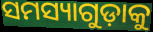
ସମସ୍ୟାଗୁଡ଼ାକୁ